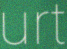
urt